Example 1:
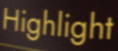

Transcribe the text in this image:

Highlight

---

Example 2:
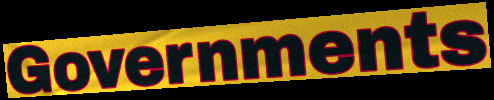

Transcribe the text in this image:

Governments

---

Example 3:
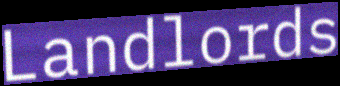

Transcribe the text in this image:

Landlords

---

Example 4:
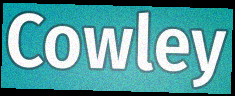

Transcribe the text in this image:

Cowley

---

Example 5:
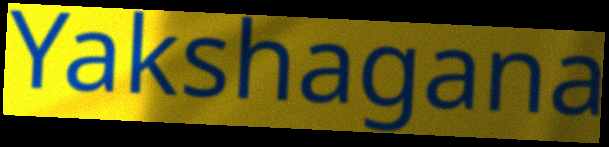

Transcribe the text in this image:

Yakshagana